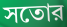
সতোর